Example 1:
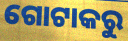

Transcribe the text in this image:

ଗୋଟାକରୁ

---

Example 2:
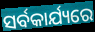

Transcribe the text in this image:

ସର୍ବକାର୍ଯ୍ୟରେ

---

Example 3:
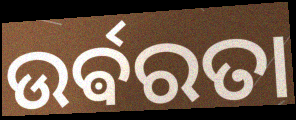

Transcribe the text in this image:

ଉର୍ଵରତା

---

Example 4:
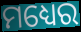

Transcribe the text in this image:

ମଧ୍ୟେର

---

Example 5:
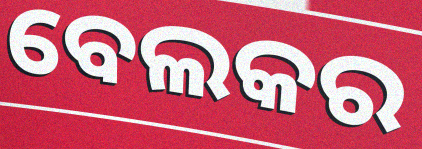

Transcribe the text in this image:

ବେଲକର